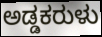
ಅಡ್ಡಕರುಳು